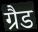
ग्रैड